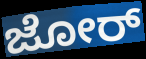
ಜೋರ್